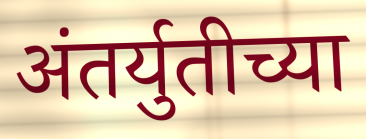
अंतर्युतीच्या